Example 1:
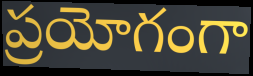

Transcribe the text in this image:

ప్రయోగంగా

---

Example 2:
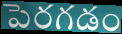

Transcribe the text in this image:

పెరగడం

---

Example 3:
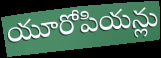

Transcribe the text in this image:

యూరోపియన్లు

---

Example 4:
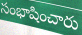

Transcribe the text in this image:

సంభాషించారు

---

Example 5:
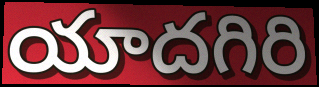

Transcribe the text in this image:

యాదగిరి